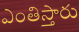
ఎంతిస్తారు